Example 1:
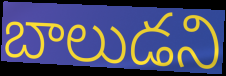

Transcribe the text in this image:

బాలుడని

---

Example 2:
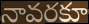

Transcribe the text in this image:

నావరకూ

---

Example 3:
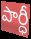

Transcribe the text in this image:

పార్ధీ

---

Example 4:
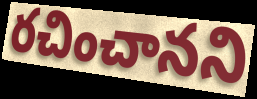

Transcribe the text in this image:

రచించానని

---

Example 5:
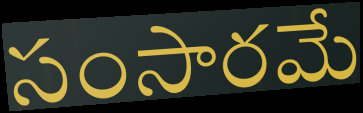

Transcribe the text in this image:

సంసారమే